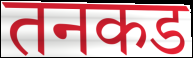
तनकड